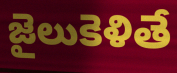
జైలుకెళితే